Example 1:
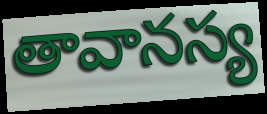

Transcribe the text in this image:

తావానస్య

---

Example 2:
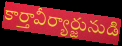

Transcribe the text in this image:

కార్తావీర్యార్జునుడి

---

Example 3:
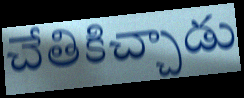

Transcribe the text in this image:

చేతికిచ్చాడు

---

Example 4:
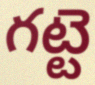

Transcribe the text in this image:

గట్టె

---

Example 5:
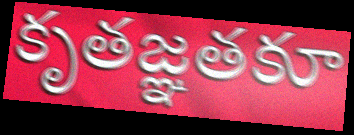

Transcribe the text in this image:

కృతజ్ఞతకూ